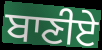
ਬਾਣੀਏ